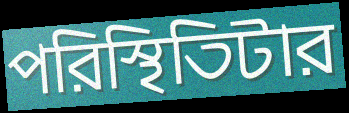
পরিস্থিতিটার